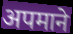
अपमाने